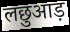
लछुआड़